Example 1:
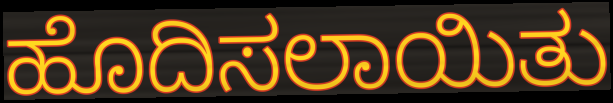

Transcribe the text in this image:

ಹೊದಿಸಲಾಯಿತು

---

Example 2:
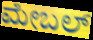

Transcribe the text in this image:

ಮೇಬಲ್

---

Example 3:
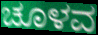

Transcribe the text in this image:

ಚೂಳವ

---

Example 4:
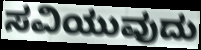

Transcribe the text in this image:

ಸವಿಯುವುದು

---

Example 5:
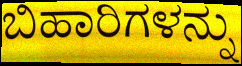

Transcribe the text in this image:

ಬಿಹಾರಿಗಳನ್ನು